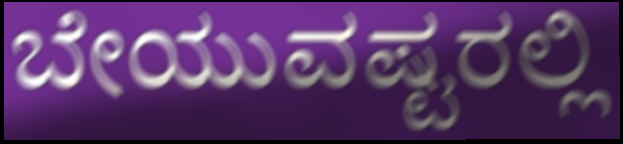
ಬೇಯುವಷ್ಟರಲ್ಲಿ